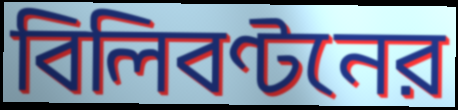
বিলিবণ্টনের